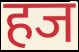
हज